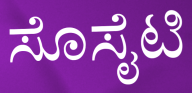
ಸೊಸೈಟಿ